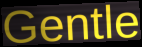
Gentle